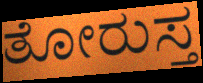
ತೋರುಸ್ತ